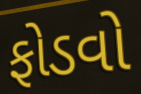
ફોડવો